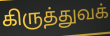
கிருத்துவக்